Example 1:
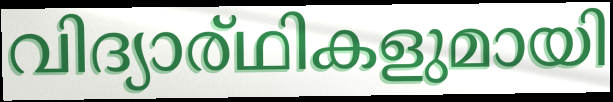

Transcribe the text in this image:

വിദ്യാര്ഥികളുമായി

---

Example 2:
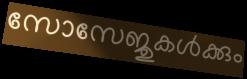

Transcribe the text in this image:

സോസേജുകൾക്കും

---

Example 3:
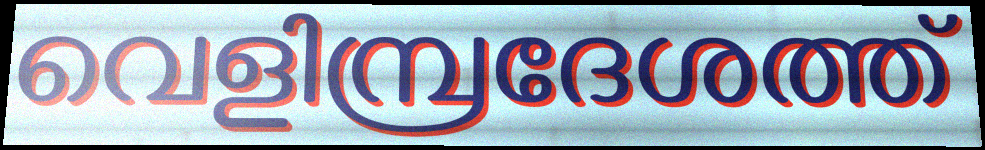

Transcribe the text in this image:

വെളിമ്പ്രദേശത്ത്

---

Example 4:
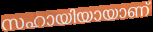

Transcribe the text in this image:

സഹായിയായാണ്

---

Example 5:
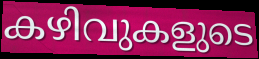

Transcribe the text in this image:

കഴിവുകളുടെ